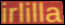
irlilla